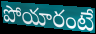
పోయారంటే